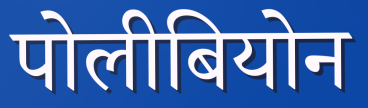
पोलीबियोन